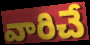
వారిచే